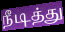
நீடித்து